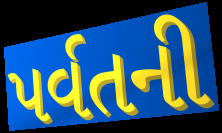
પર્વતની